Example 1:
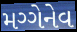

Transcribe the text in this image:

મગ્ગેનેવ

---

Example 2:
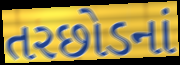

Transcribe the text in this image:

તરછોડનાં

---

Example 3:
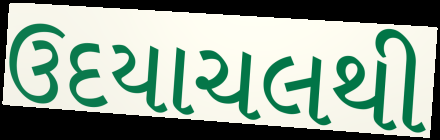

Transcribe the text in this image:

ઉદયાચલથી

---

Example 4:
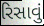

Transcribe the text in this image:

રિસાવું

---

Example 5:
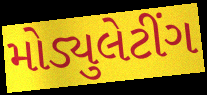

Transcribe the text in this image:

મોડ્યુલેટીંગ